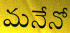
మనేనో